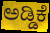
ಅಡ್ಡಿಕೆ